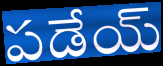
పడేయ్